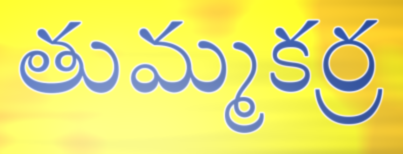
తుమ్మకర్ర